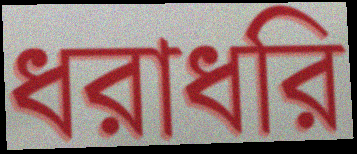
ধরাধরি